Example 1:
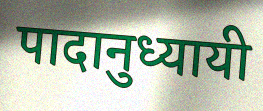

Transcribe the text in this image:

पादानुध्यायी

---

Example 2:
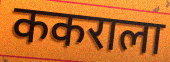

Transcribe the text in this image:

ककराला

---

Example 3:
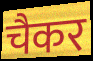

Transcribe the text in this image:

चैकर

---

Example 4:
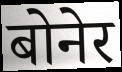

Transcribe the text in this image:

बोनेर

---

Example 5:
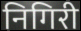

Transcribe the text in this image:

निगिरी